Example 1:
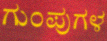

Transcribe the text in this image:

ಗುಂಪುಗಳ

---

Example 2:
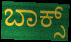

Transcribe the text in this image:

ಬಾಕ್ಸ್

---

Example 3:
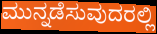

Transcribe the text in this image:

ಮುನ್ನಡೆಸುವುದರಲ್ಲಿ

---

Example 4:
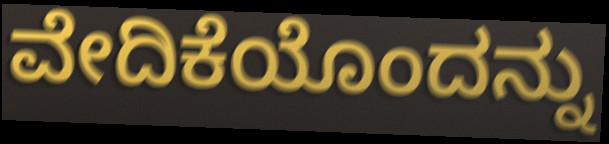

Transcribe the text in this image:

ವೇದಿಕೆಯೊಂದನ್ನು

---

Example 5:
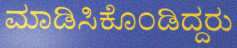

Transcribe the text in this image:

ಮಾಡಿಸಿಕೊಂಡಿದ್ದರು